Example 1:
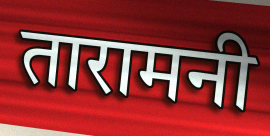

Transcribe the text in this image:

तारामनी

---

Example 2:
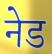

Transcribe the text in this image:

नेड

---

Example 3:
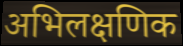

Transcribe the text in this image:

अभिलक्षणिक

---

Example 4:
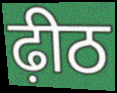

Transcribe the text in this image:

ढ़ीठ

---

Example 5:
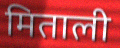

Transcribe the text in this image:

मिताली